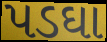
પડઘા